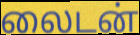
லைடன்